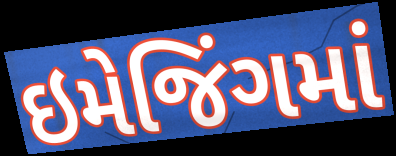
ઇમેજિંગમાં